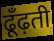
ढूँढ़ती